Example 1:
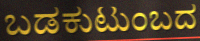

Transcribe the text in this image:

ಬಡಕುಟುಂಬದ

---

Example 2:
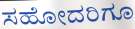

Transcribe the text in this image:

ಸಹೋದರಿಗೂ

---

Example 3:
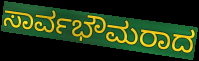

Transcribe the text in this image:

ಸಾರ್ವಭೌಮರಾದ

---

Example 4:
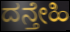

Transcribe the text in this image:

ದನ್ತೇಹಿ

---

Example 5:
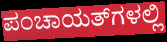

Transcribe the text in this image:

ಪಂಚಾಯತ್‌ಗಳಲ್ಲಿ